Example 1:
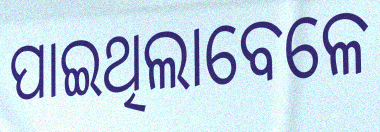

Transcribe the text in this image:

ପାଇଥିଲାବେଳେ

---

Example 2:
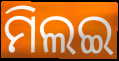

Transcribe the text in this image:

ମିଲଇ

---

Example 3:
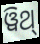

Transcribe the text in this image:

ୱିଥ୍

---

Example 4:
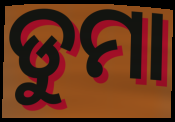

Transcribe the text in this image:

ଡୁମା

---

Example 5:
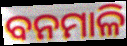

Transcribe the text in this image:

ବନମାଳି